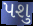
પશુ